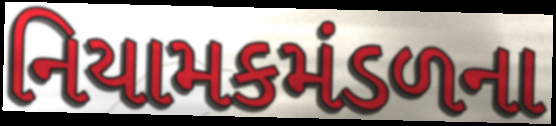
નિયામકમંડળના